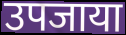
उपजाया